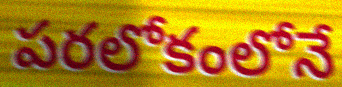
పరలోకంలోనే